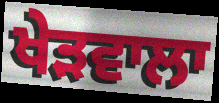
ਖੇੜਵਾਲਾ